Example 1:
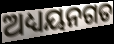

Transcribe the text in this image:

ଅଧ୍ୟୟନଗତ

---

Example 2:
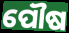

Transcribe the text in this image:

ପୌଷ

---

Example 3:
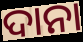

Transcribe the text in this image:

ଦାନା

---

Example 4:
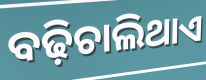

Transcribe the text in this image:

ବଢ଼ିଚାଲିଥାଏ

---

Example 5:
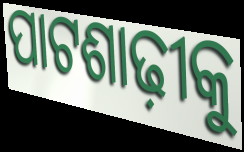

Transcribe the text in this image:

ପାଟଶାଢ଼ୀକୁ